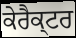
ਕੇਰੈਕ੍ਟਰ